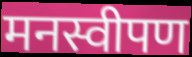
मनस्वीपण